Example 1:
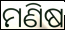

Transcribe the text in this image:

ମଣିଷ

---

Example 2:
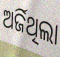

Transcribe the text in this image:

ଅର୍ଜିଥିଲା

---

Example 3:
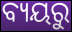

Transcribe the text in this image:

ବ୍ୟୟରୁ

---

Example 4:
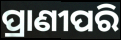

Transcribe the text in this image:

ପ୍ରାଣୀପରି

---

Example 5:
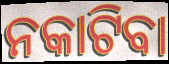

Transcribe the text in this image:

ନକାଟିବା